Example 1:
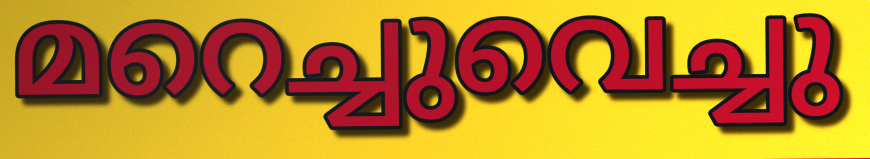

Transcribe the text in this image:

മറെച്ചുവെച്ചു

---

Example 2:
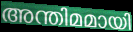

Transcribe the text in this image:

അന്തിമമായി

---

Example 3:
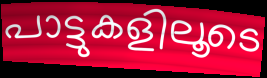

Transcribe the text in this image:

പാട്ടുകളിലൂടെ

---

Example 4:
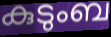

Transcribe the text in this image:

കുടുംബ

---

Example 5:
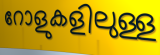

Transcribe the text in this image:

റോളുകളിലുള്ള